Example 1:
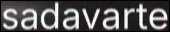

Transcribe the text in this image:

sadavarte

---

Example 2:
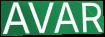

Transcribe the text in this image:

AVAR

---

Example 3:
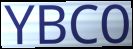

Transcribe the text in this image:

YBCO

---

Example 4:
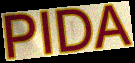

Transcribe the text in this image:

PIDA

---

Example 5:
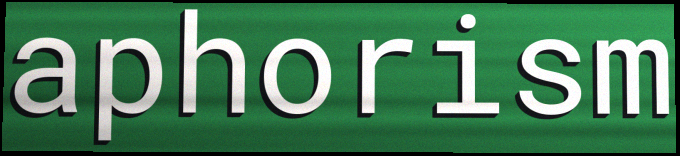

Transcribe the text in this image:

aphorism